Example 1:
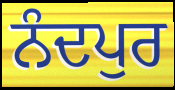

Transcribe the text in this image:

ਨੰਦਪੁਰ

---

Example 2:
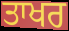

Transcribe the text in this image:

ਤਾਖਰ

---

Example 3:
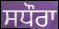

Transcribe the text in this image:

ਸਧੌਰਾ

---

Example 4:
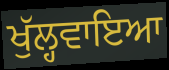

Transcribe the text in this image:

ਖੁੱਲ੍ਹਵਾਇਆ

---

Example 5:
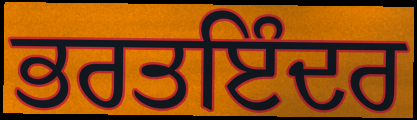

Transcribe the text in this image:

ਭਰਤਇੰਦਰ